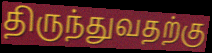
திருந்துவதற்கு